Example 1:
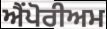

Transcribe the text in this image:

ਐਂਪੋਰੀਅਮ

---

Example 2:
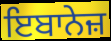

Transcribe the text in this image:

ਇਬਾਨੇਜ਼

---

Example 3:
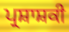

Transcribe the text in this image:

ਪ੍ਰਸ਼ਾਸ਼ਕੀ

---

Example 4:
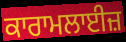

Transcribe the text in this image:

ਕਾਰਾਮਲਾਈਜ਼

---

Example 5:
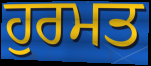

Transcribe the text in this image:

ਹੁਰਮਤ